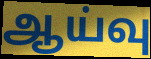
ஆய்வு